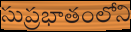
సుప్రభాతంలోని